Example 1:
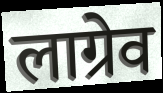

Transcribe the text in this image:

लाग्रेव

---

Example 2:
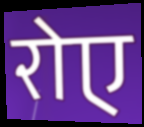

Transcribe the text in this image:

रोए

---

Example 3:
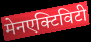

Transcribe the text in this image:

मेनएक्टिविटी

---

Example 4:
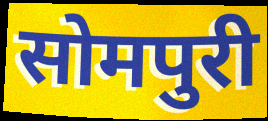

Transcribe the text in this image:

सोमपुरी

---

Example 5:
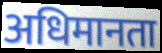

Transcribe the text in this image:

अधिमानता